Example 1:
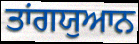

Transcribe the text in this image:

ਤਾਂਗਯੁਆਨ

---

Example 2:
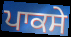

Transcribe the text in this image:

ਪਾਕਸੇ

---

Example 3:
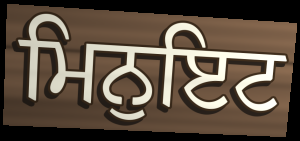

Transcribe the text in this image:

ਮਿਨੁਇਟ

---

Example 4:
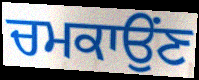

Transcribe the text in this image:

ਚਮਕਾਉਂਣ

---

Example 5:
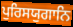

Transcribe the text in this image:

ਪੁਰਿਸਯੁਗਾਨਿ